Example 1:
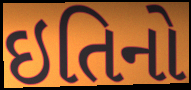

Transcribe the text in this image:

ઇતિનો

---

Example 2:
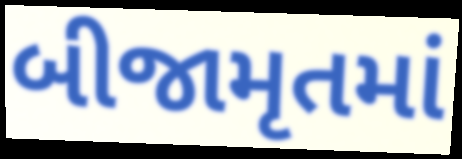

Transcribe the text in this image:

બીજામૃતમાં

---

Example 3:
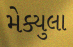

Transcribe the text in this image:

મેક્યુલા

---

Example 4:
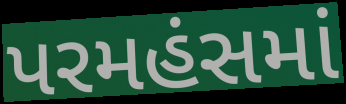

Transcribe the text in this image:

પરમહંસમાં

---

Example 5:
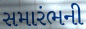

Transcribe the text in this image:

સમારંભની